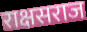
राक्षसराज